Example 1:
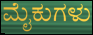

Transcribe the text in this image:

ಮೈಕುಗಳು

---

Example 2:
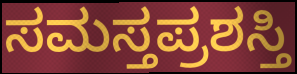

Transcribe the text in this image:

ಸಮಸ್ತಪ್ರಶಸ್ತಿ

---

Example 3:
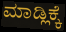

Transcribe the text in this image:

ಮಾಡ್ಲಿಕ್ಕೆ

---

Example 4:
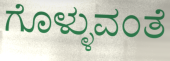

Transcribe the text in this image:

ಗೊಳ್ಳುವಂತೆ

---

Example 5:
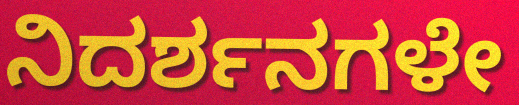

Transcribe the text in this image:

ನಿದರ್ಶನಗಳೇ